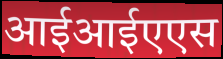
आईआईएएस